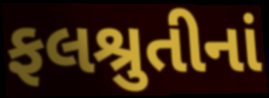
ફલશ્રુતીનાં